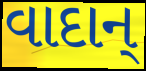
વાદાન્